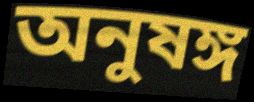
অনুষঙ্গ